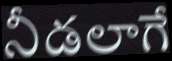
నీడలాగే